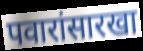
पवारांसारखा